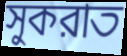
সুকরাত